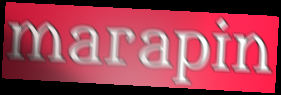
marapin